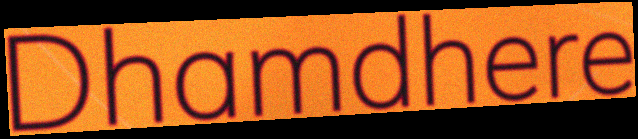
Dhamdhere